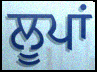
ਲੂਪਾਂ